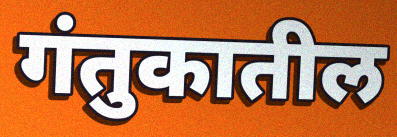
गंतुकातील